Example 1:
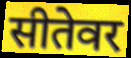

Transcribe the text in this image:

सीतेवर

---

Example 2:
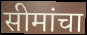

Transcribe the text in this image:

सीमांचा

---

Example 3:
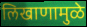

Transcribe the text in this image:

लिखाणामुळे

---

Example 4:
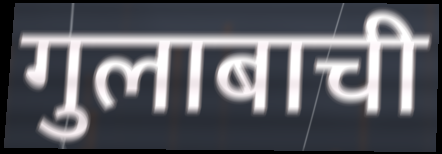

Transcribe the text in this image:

गुलाबाची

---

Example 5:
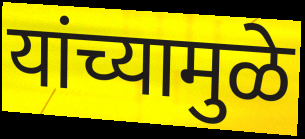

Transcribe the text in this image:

यांच्यामुळे